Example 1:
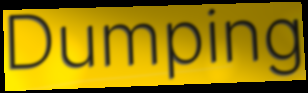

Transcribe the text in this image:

Dumping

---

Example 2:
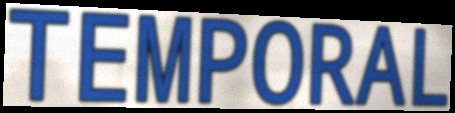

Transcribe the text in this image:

TEMPORAL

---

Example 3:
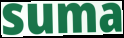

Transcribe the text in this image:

suma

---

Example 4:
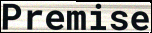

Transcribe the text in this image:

Premise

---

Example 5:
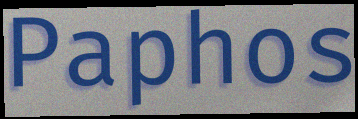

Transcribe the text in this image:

Paphos